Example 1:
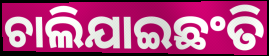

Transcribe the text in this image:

ଚାଲିଯାଇଛଂତି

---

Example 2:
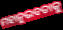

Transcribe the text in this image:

ମହାନୁଭବତାକୁ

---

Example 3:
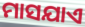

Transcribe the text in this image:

ମାସଯାଏ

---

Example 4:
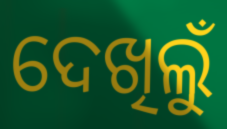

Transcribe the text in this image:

ଦେଖିଲୁଁ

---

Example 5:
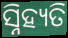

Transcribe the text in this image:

ସ୍ନିହ୍ୟତି